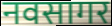
नवसागर